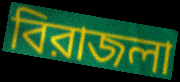
বিরাজলা